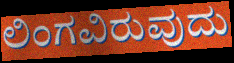
ಲಿಂಗವಿರುವುದು